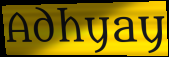
Adhyay